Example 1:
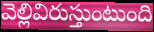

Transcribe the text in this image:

వెల్లివిరుస్తుంటుంది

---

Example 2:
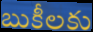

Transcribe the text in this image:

బుకీలకు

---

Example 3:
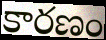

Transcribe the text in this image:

కారణం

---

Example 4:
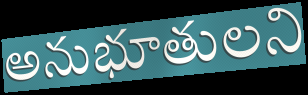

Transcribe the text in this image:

అనుభూతులని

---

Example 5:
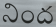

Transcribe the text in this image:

నింద